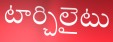
టార్చిలైటు